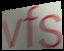
vfs